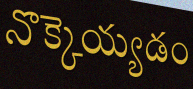
నొక్కెయ్యడం